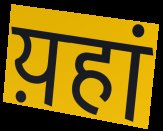
य़हां